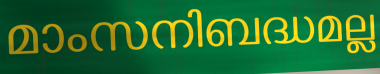
മാംസനിബദ്ധമല്ല